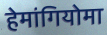
हेमांगियोमा